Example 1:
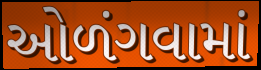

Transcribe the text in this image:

ઓળંગવામાં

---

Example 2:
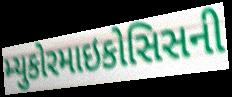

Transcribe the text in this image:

મ્યુકોરમાઇકોસિસની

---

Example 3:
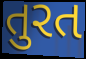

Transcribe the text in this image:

તુરત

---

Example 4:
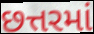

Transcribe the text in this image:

છત્તરમાં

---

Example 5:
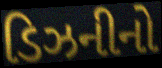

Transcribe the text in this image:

ડિઝનીનો